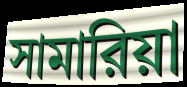
সামারিয়া